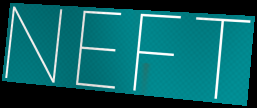
NEFT